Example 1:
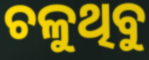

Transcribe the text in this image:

ଚଳୁଥିବୁ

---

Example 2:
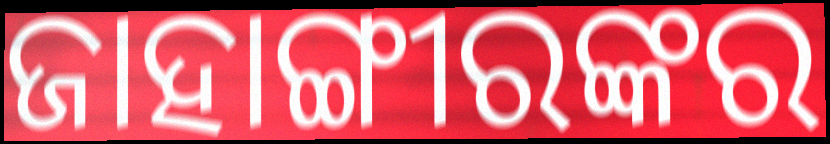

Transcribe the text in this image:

ଜାହାଙ୍ଗୀରଙ୍କର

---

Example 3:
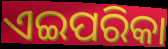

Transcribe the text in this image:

ଏଇପରିକା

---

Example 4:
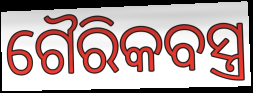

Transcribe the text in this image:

ଗୈରିକବସ୍ତ୍ର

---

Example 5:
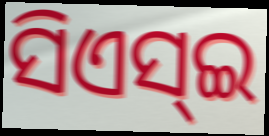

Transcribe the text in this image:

ସିଏସ୍ଇ